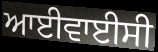
ਆਈਵਾਈਸੀ